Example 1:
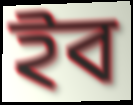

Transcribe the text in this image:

ইব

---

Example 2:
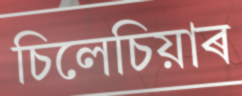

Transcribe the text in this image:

চিলেচিয়াৰ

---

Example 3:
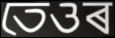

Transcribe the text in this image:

তেওৰ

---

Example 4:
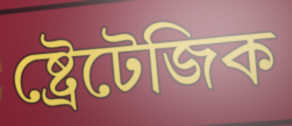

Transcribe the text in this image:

ষ্ট্ৰেটেজিক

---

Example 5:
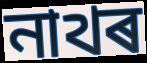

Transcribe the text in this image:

নাথৰ